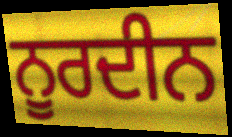
ਨੂਰਦੀਨ